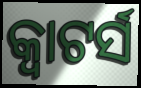
କ୍ଵାଟର୍ସ